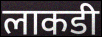
लाकडी